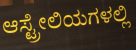
ಆಸ್ಟ್ರೇಲಿಯಗಳಲ್ಲಿ